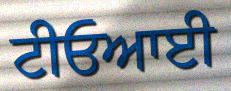
ਟੀਓਆਈ